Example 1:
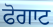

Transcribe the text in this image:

ਫੋਗਾਟ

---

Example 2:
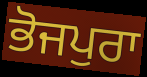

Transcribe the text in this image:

ਭੋਜਪੁਰਾ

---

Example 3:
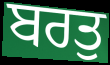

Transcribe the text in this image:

ਬਰਤੁ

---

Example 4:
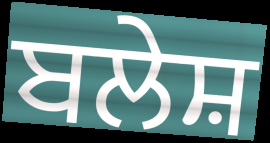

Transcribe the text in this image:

ਬਲੇਸ਼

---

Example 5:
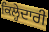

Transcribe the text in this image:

ਕਿਲ੍ਹੇਦਾਰੀ